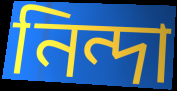
নিন্দা